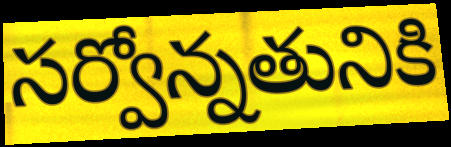
సర్వోన్నతునికి